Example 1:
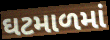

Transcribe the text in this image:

ઘટમાળમાં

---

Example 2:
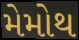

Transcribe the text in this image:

મેમોથ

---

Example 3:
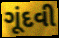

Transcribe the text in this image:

ગૂંદવી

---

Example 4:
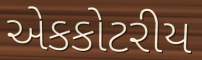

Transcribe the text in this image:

એકકોટરીય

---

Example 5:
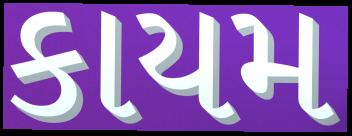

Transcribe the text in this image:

કાયમ